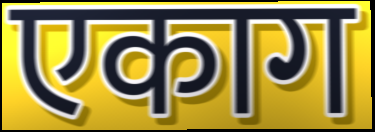
एकाग